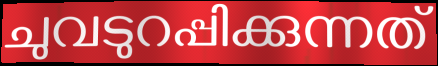
ചുവടുറപ്പിക്കുന്നത്